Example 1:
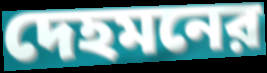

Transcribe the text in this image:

দেহমনের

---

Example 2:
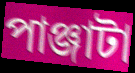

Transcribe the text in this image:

পাঞ্জাটা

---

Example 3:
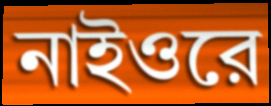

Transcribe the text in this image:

নাইওরে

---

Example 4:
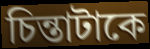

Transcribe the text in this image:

চিন্তাটাকে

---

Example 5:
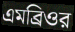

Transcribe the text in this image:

এমব্রিওর